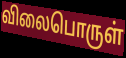
விலைபொருள்